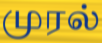
முரல்